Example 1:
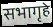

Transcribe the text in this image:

सभागृहे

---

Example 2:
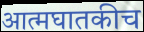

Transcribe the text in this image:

आत्मघातकीच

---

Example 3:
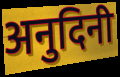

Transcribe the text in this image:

अनुदिनी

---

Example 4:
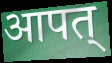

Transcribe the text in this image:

आपत्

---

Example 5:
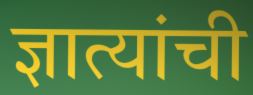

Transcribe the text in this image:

ज्ञात्यांची